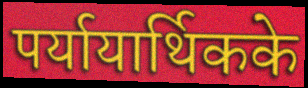
पर्यायार्थिकके